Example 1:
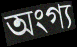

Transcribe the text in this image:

অংগ্য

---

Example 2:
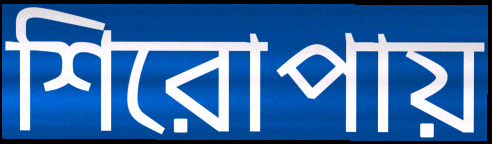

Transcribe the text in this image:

শিরোপায়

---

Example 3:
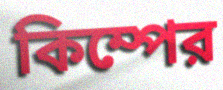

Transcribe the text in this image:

কিম্পের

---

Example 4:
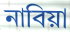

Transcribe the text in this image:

নাবিয়া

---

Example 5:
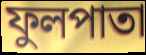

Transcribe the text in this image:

ফুলপাতা